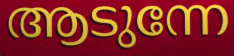
ആടുന്നേ